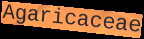
Agaricaceae